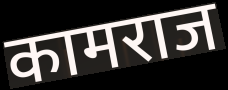
कामराज